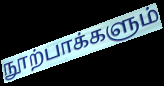
நூற்பாக்களும்